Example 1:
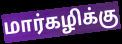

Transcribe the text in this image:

மார்கழிக்கு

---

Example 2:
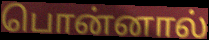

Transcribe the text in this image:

பொன்னால்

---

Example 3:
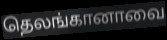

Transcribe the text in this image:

தெலங்கானாவை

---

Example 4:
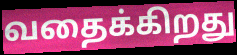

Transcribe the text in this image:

வதைக்கிறது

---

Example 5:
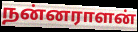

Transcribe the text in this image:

நன்னராளன்